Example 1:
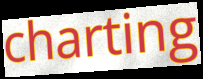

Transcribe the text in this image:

charting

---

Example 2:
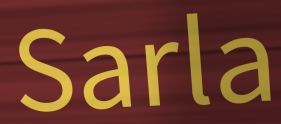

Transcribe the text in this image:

Sarla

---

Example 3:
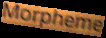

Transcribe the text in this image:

Morpheme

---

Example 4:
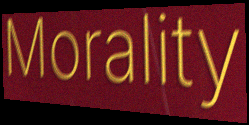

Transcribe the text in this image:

Morality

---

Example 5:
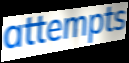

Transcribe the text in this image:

attempts